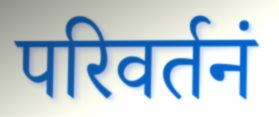
परिवर्तनं